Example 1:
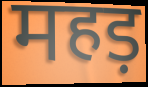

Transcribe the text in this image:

महड़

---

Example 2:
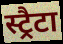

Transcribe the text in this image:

स्ट्रैटा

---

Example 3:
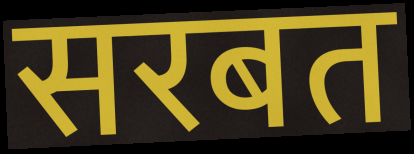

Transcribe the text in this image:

सरबत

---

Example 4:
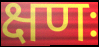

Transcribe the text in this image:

क्षणः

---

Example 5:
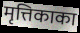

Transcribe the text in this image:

मृत्तिकाका